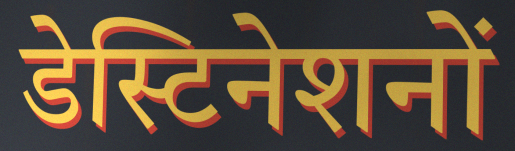
डेस्टिनेशनों